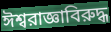
ঈশ্বরাজ্ঞাবিরুদ্ধ